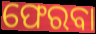
ଫେରବା